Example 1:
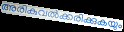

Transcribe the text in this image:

അരികുവൽക്കരിക്കുകയും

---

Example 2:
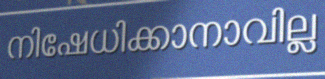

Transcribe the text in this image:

നിഷേധിക്കാനാവില്ല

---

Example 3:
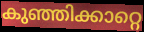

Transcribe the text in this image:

കുഞ്ഞിക്കാറ്റെ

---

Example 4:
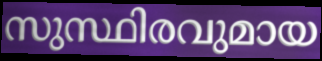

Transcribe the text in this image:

സുസ്ഥിരവുമായ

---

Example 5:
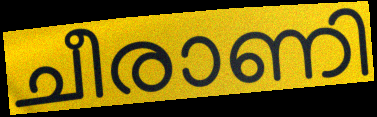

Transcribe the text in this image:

ചീരാണി